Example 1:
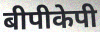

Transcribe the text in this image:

बीपीकेपी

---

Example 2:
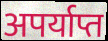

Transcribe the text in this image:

अपर्याप्त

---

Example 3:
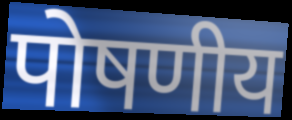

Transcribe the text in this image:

पोषणीय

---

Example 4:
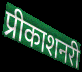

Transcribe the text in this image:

प्रीकाशनरी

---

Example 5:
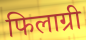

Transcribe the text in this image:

फिलाग्री